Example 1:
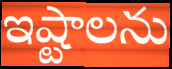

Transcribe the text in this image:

ఇష్టాలను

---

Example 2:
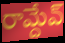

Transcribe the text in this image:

రామ్దేవ్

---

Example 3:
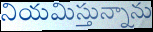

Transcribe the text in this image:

నియమిస్తున్నాను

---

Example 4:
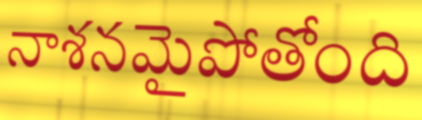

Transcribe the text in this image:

నాశనమైపోతోంది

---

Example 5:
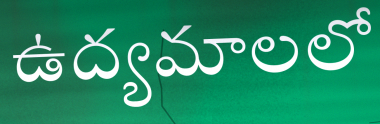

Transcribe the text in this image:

ఉద్యమాలలో